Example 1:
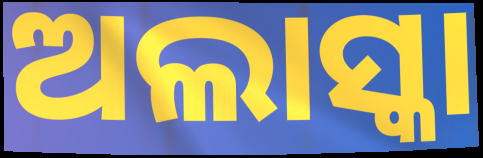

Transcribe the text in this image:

ଅଲାସ୍କା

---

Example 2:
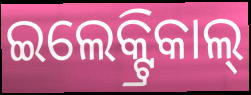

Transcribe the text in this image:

ଇଲେକ୍ଟ୍ରିକାଲ୍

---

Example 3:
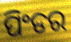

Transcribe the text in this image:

ପିଂଡର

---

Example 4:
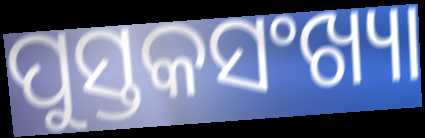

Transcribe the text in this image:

ପୁସ୍ତକସଂଖ୍ୟା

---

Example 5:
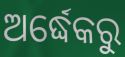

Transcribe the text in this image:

ଅର୍ଦ୍ଧେକରୁ